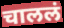
चाललं